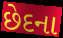
છેદના